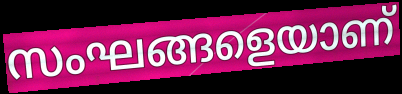
സംഘങ്ങളെയാണ്